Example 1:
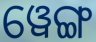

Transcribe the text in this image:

ୱେଙ୍ଗ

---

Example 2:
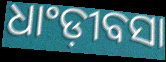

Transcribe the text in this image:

ଧାଂଡ଼ୀବସା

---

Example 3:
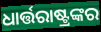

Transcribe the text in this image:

ଧାର୍ତ୍ତରାଷ୍ଟ୍ରଙ୍କର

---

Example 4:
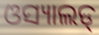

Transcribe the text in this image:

ଓସ୍ୟାଲଡ୍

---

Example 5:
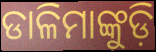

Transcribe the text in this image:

ଡାଳିମାଙ୍କୁଡ଼ି